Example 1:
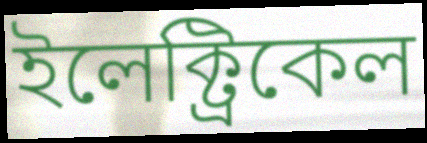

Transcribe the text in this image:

ইলেক্ট্রিকেল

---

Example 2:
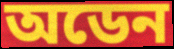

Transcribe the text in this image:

অডেন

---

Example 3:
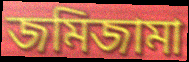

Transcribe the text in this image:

জমিজামা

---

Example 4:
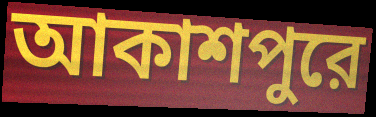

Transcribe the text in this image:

আকাশপুরে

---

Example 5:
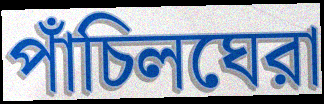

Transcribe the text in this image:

পাঁচিলঘেরা